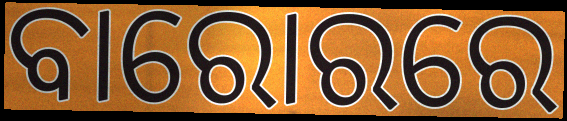
ବାରୋରରେ